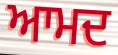
ਆਮਦ